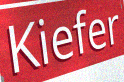
Kiefer